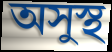
অসুস্থ